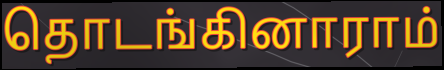
தொடங்கினாராம்